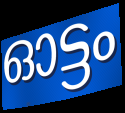
ഓട്ടം